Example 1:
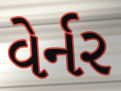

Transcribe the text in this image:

વેર્નર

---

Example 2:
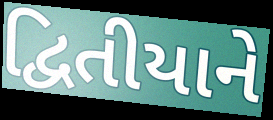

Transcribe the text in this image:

દ્વિતીયાને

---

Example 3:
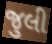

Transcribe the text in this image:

જુલી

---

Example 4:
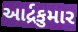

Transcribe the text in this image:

આર્દ્રકુમાર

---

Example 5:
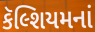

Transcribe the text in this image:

કૅલ્શિયમનાં